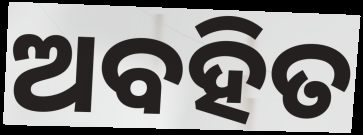
ଅବହିତ